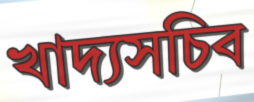
খাদ্যসচিব